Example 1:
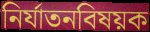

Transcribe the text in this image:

নির্যাতনবিষয়ক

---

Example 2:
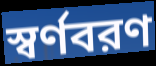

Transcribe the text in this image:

স্বর্ণবরণ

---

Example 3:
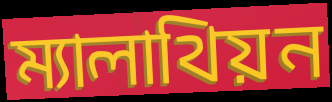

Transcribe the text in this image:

ম্যালাথিয়ন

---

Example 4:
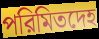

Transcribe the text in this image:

পরিমিতদেহ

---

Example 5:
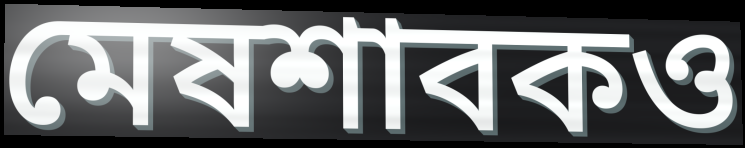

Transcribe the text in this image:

মেষশাবকও